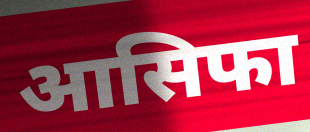
आसिफा